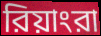
রিয়াংরা